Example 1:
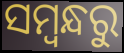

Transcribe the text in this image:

ସମ୍ୱନ୍ଧରୁ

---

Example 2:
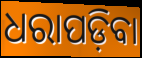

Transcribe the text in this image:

ଧରାପଡ଼ିବା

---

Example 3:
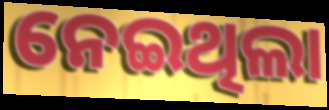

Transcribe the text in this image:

ନେଇଥିଲା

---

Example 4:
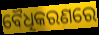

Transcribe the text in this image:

ବୈଧିକରଣରେ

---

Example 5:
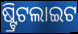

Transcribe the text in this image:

ଷ୍ଟ୍ରିଟଲାଇଟ